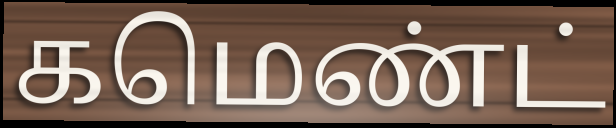
கமெண்ட்